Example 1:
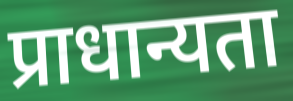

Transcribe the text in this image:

प्राधान्यता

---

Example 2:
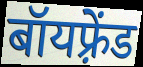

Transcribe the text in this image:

बॉयफ़्रेंड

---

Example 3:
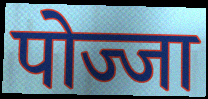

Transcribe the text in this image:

पोज्जा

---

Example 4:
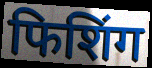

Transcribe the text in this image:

फिशिंग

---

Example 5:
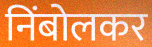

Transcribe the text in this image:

निंबोलकर